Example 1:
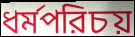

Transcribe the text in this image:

ধর্মপরিচয়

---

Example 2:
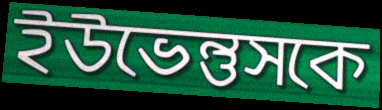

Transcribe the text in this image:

ইউভেন্তুসকে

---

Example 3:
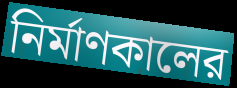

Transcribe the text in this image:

নির্মাণকালের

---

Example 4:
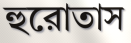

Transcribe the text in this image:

হুরোতাস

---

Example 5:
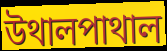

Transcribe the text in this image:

উথালপাথাল